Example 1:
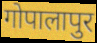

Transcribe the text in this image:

गोपालापुर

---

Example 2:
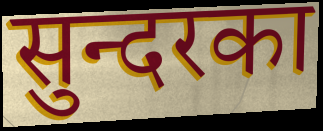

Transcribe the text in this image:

सुन्दरका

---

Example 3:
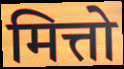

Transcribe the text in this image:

मित्तो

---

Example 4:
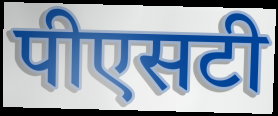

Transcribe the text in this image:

पीएसटी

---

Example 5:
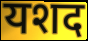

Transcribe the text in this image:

यशद